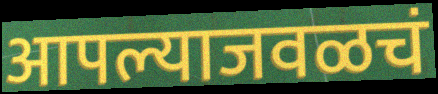
आपल्याजवळचं